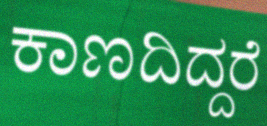
ಕಾಣದಿದ್ದರೆ